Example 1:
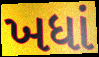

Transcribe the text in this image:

ખધાં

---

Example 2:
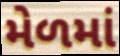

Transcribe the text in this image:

મેળમાં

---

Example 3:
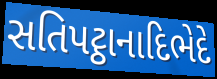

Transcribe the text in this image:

સતિપટ્ઠાનાદિભેદે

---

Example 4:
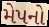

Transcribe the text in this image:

મેપનો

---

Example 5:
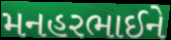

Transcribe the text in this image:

મનહરભાઈને